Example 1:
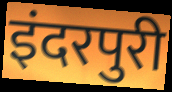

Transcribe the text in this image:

इंदरपुरी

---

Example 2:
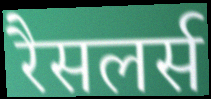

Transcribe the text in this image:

रैसलर्स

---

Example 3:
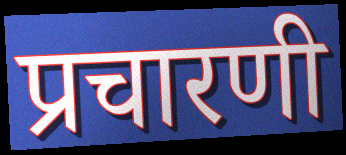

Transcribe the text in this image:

प्रचारणी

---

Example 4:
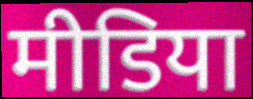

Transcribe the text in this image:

मीडिया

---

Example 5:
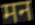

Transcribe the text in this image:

मन